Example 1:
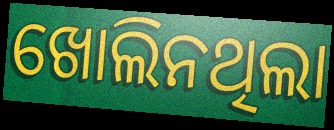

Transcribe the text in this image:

ଖୋଲିନଥିଲା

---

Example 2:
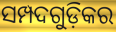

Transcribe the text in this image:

ସମ୍ପଦଗୁଡ଼ିକର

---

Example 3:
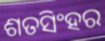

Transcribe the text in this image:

ଶତସିଂହର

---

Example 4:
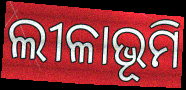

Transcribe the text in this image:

ଲୀଳାଭୂମି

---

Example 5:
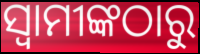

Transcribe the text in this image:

ସ୍ବାମୀଙ୍କଠାରୁ